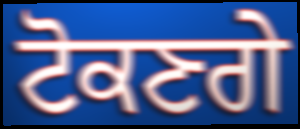
ਟੋਕਣਗੇ